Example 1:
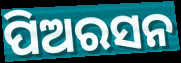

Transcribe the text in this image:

ପିଅରସନ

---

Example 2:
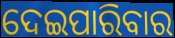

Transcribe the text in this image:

ଦେଇପାରିବାର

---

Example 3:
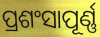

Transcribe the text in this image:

ପ୍ରଶଂସାପୂର୍ଣ୍ଣ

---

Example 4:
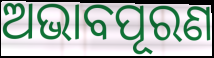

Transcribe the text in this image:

ଅଭାବପୂରଣ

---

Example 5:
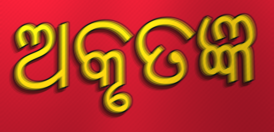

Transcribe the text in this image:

ଅକୃତଜ୍ଞ